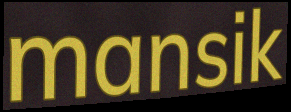
mansik